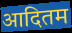
आदितम